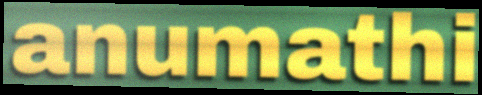
anumathi